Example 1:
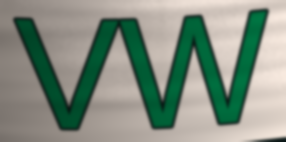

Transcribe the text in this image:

VW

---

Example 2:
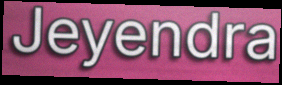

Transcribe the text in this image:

Jeyendra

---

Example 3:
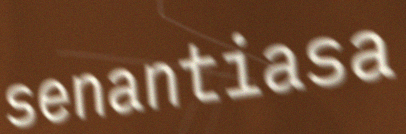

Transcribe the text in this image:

senantiasa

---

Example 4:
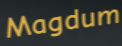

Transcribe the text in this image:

Magdum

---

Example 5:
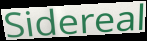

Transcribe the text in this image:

Sidereal